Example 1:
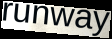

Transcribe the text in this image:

runway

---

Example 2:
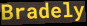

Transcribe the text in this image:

Bradely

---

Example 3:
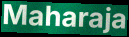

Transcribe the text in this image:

Maharaja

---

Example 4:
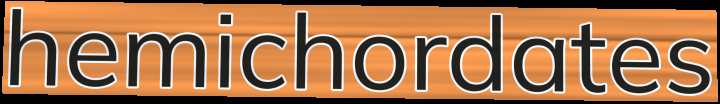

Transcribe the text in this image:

hemichordates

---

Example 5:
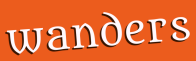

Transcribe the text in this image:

wanders